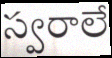
స్వరాలే